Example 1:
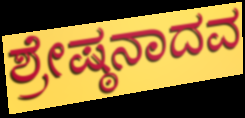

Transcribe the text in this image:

ಶ್ರೇಷ್ಠನಾದವ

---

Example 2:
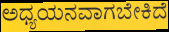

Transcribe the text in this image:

ಅಧ್ಯಯನವಾಗಬೇಕಿದೆ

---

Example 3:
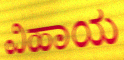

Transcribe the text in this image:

ವಿಹಾಯ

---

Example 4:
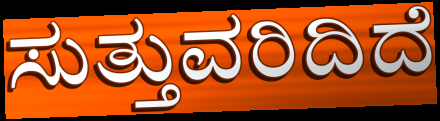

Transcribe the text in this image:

ಸುತ್ತುವರಿದಿದೆ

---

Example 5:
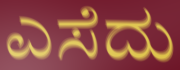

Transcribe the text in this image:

ಎಸೆದು